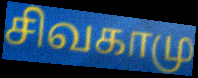
சிவகாமு